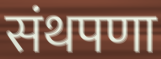
संथपणा